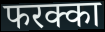
फरक्का